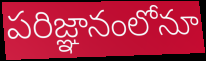
పరిజ్ఞానంలోనూ